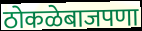
ठोकळेबाजपणा